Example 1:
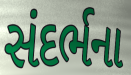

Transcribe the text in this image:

સંદર્ભના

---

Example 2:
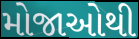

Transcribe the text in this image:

મોજાઓથી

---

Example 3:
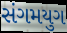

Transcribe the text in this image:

સંગમયુગ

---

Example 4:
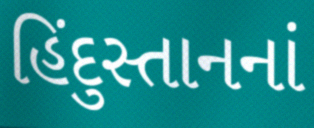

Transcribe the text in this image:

હિંદુસ્તાનનાં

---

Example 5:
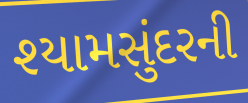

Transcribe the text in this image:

શ્યામસુંદરની